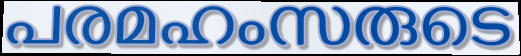
പരമഹംസരുടെ